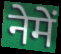
नेमें